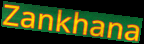
Zankhana